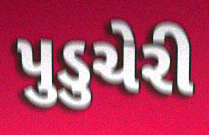
પુડુચેરી